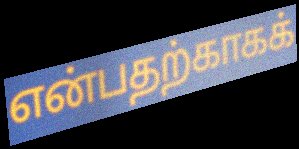
என்பதற்காகக்